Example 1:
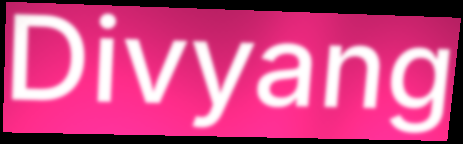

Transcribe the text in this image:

Divyang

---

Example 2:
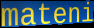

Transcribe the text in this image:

mateni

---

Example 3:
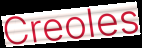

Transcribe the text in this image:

Creoles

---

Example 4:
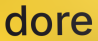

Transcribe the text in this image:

dore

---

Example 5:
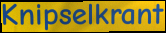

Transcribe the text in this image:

Knipselkrant